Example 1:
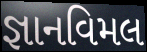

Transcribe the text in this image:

જ્ઞાનવિમલ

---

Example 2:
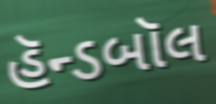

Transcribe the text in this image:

હૅન્ડબૉલ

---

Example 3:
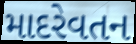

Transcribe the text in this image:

માદરેવતન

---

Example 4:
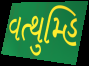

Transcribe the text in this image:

વત્થુમ્હિ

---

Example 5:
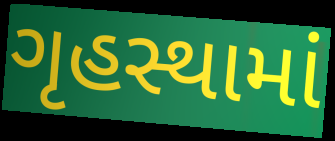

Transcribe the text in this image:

ગૃહસ્થામાં